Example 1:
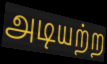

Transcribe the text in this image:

அடியற்ற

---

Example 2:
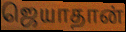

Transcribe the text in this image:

ஜெயாதான்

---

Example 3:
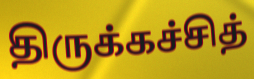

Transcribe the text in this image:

திருக்கச்சித்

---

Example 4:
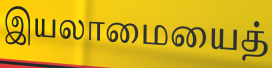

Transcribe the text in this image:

இயலாமையைத்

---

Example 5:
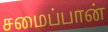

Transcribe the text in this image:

சமைப்பான்